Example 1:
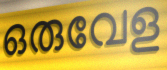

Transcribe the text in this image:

ഒരുവേള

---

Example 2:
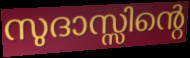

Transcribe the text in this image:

സുദാസ്സിന്റെ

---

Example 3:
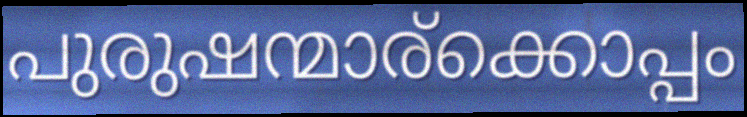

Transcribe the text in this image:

പുരുഷന്മാര്ക്കൊപ്പം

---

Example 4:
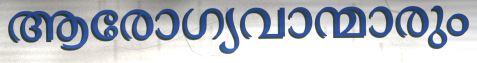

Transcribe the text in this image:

ആരോഗ്യവാന്മാരും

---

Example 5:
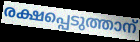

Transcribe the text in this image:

രക്ഷപ്പെടുത്താന്